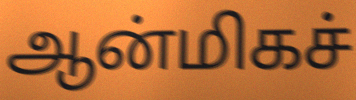
ஆன்மிகச்